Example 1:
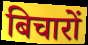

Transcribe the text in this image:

बिचारों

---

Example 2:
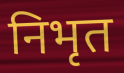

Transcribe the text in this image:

निभृत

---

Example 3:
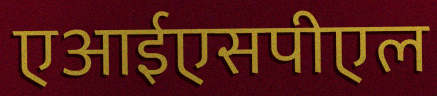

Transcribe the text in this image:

एआईएसपीएल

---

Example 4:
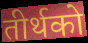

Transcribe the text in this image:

तीर्थको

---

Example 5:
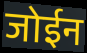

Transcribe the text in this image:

जोईन